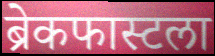
ब्रेकफास्टला